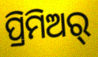
ପ୍ରିମିଅର୍